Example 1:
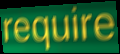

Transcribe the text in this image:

require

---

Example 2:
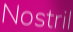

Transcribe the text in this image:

Nostril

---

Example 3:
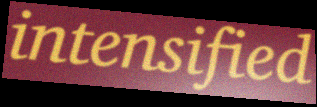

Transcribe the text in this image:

intensified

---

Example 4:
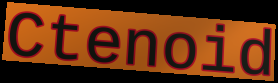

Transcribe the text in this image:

Ctenoid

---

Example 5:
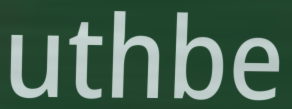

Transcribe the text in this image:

uthbe